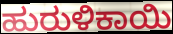
ಹುರುಳಿಕಾಯಿ